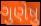
ગુણેષુ